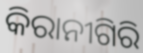
କିରାନୀଗିରି